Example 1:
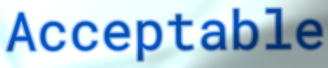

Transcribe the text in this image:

Acceptable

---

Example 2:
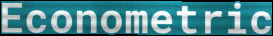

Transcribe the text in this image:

Econometric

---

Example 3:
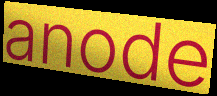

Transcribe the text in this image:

anode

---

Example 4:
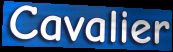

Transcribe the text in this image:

Cavalier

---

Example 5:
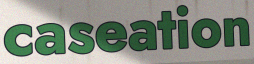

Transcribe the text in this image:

caseation